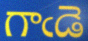
గాఁడె